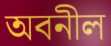
অবনীল